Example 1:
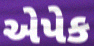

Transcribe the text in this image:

એપેક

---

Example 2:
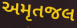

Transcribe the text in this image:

અમૃતજલ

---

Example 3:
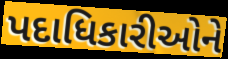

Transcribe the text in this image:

પદાધિકારીઓને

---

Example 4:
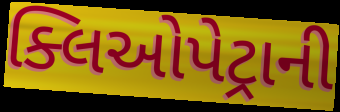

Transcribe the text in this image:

ક્લિઓપેટ્રાની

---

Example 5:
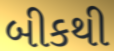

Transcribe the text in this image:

બીકથી